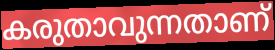
കരുതാവുന്നതാണ്